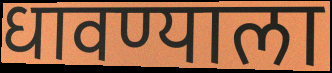
धावण्याला